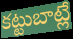
కట్టుబాట్లే